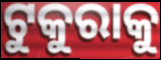
ଟୁକୁରାକୁ